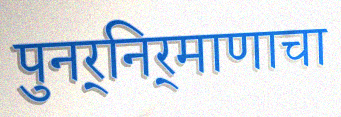
पुनर्निर्माणाचा